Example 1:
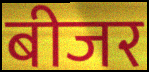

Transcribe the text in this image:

बीजर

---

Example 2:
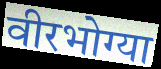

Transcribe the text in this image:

वीरभोग्या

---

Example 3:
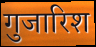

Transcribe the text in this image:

गुजारिश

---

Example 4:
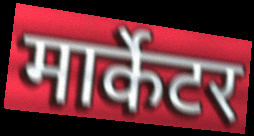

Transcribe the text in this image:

मार्केटर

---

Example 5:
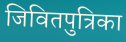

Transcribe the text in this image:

जिवितपुत्रिका